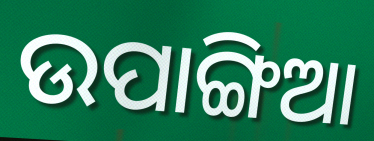
ଉପାଙ୍ଗିଆ